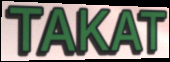
TAKAT